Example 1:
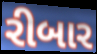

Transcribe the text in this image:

રીબાર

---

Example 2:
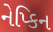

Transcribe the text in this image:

નેપ્કિન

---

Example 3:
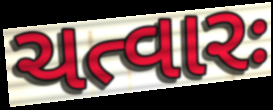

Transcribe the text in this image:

ચત્વારઃ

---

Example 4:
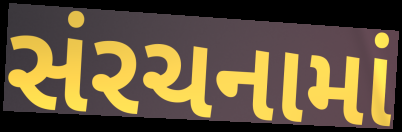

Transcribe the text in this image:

સંરચનામાં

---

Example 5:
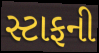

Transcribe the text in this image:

સ્ટાફની